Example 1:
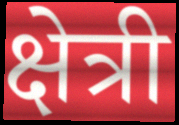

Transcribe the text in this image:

क्षेत्री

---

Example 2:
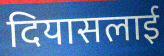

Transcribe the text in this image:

दियासलाई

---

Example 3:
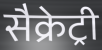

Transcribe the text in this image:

सैक्रेट्री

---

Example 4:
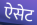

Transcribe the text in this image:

ऐसेट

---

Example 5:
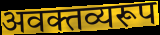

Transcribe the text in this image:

अवक्तव्यरूप